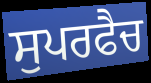
ਸੁਪਰਫੈਚ